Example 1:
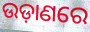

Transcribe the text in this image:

ଉଡ଼ାଣରେ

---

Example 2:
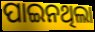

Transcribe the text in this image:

ପାଇନଥିଲା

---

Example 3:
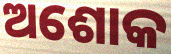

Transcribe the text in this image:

ଅଶୋକ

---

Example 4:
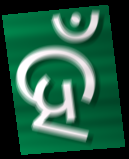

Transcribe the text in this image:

ହଁ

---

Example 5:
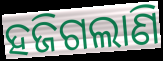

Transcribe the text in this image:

ହଜିଗଲାଣି